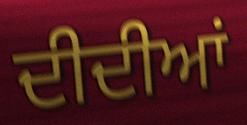
ਦੀਦੀਆਂ